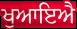
ਖੁਆਇਐ